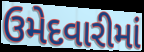
ઉમેદવારીમાં